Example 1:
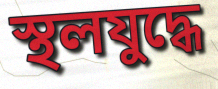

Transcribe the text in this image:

স্থলযুদ্ধে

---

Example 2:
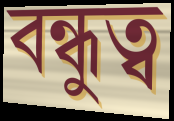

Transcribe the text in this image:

বন্ধুত্ব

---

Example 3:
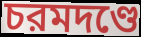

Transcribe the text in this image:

চরমদণ্ডে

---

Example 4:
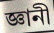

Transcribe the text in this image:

জ্ঞানী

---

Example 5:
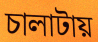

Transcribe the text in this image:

চালাটায়